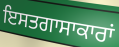
ਇਸਤਗਾਸਾਕਾਰਾਂ